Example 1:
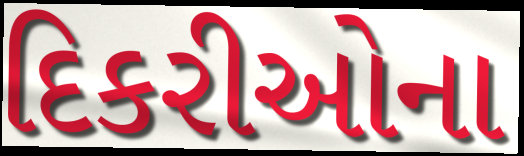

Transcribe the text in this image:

દિકરીઓના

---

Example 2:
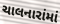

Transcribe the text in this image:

ચાલનારાંમાં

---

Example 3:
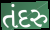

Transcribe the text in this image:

તંદરુ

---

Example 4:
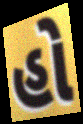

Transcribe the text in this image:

હો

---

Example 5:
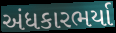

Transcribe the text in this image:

અંધકારભર્યા